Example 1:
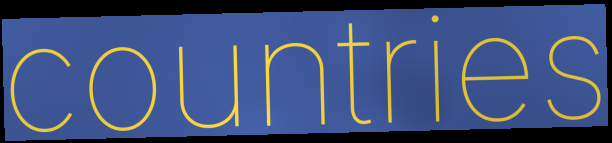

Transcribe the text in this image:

countries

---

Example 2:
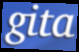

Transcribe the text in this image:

gita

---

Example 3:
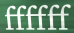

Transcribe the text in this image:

ffffff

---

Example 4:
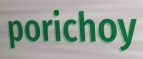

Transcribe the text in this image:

porichoy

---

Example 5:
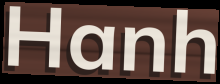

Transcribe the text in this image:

Hanh